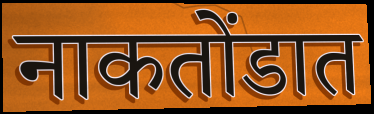
नाकतोंडात